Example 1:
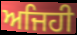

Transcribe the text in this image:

ਅਜਿਹੀ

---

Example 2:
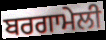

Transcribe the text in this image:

ਬਰਗਾਮੇਲੀ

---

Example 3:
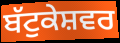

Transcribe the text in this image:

ਬੱਟੁਕੇਸ਼ਵਰ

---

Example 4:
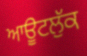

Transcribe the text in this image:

ਆਊਟਲੁੱਕ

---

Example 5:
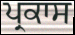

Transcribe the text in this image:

ਪ੍ਰਕਾਸ